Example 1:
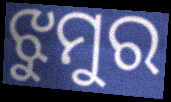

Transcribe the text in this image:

ଝୁମୁର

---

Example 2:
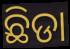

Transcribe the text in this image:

ଛିଡା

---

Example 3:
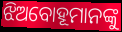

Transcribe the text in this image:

ଝିଅବୋହୂମାନଙ୍କୁ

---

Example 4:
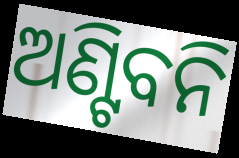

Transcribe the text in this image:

ଅଣ୍ଟିବନି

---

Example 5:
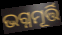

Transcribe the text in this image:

ଭଗ୍ନମୂର୍ତ୍ତି